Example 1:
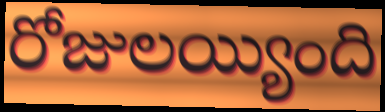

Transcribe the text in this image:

రోజులయ్యింది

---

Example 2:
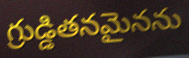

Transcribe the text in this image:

గ్రుడ్డితనమైనను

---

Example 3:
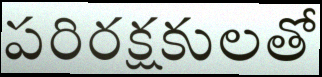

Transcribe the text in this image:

పరిరక్షకులతో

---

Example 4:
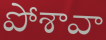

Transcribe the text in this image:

పోశావా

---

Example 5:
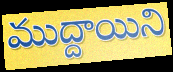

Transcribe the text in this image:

ముద్దాయిని